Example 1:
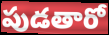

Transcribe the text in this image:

పుడతారో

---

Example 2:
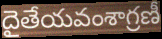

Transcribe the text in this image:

దైతేయవంశాగ్రణీ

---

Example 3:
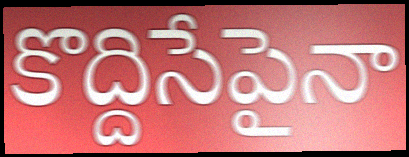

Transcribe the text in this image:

కొద్దిసేపైనా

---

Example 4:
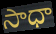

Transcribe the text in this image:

సాధా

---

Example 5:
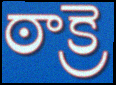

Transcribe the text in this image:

ఠాక్రె